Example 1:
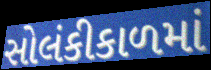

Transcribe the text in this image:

સોલંકીકાળમાં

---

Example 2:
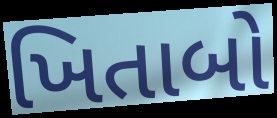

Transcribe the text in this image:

ખિતાબો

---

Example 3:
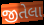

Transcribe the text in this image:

જીતેલા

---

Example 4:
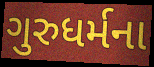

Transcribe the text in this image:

ગુરુધર્મના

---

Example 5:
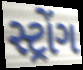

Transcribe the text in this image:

સ્ટ્રોંગ